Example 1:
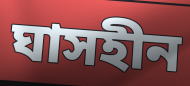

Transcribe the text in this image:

ঘাসহীন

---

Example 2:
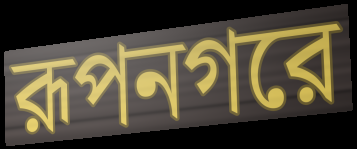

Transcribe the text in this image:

রূপনগরে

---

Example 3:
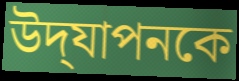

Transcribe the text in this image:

উদ্‌যাপনকে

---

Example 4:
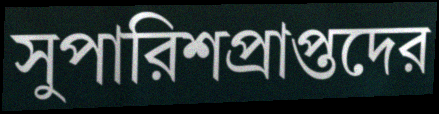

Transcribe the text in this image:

সুপারিশপ্রাপ্তদের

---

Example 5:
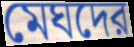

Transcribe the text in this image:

মেঘদের